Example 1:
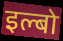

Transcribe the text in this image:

इल्बो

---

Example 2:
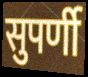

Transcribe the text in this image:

सुपर्णी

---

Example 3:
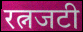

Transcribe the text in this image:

रत्नजटी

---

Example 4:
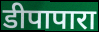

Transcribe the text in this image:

डीपापारा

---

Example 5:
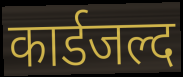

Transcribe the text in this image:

कार्डजल्द